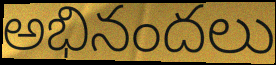
అభినందలు